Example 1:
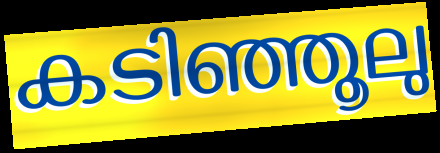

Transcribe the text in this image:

കടിഞ്ഞൂലു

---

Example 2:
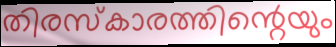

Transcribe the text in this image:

തിരസ്കാരത്തിന്റെയും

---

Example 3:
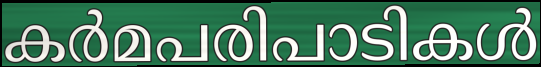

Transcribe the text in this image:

കർമപരിപാടികൾ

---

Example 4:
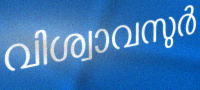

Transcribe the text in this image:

വിശ്വാവസുർ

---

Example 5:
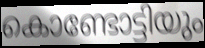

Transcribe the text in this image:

കൊണ്ടോട്ടിയും